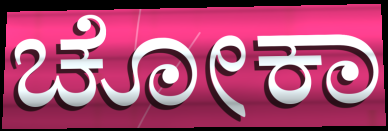
ಚೋಕಾ